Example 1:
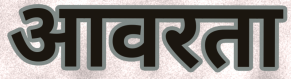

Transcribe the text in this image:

आवरता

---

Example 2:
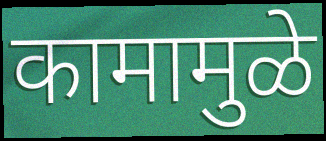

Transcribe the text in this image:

कामामुळे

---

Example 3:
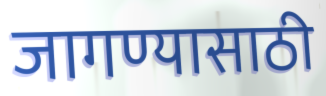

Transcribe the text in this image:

जागण्यासाठी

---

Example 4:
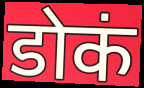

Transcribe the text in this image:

डोकं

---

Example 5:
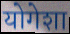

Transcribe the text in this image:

योगेशा